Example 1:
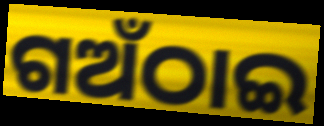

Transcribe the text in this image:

ଗଅଁଠାଇ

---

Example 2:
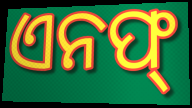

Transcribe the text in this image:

ଏନଫ୍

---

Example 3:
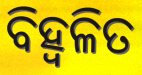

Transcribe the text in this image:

ବିହ୍ୱଳିତ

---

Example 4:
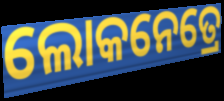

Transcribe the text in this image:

ଲୋକନେତ୍ରେ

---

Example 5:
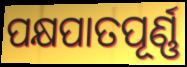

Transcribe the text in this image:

ପକ୍ଷପାତପୂର୍ଣ୍ଣ